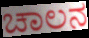
ಚಾಲನ